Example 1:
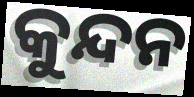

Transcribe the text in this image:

କୁନ୍ଦନ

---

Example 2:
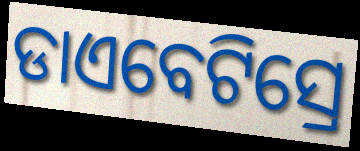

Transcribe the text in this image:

ଡାଏବେଟିସ୍ରେ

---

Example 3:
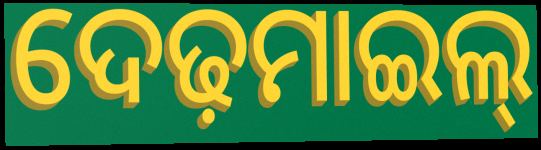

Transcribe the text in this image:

ଦେଢ଼ମାଇଲ୍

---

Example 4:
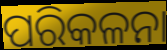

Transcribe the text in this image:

ପରିକଳନା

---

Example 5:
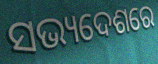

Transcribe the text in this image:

ସଭ୍ୟଦେଶରେ